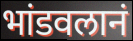
भांडवलानं